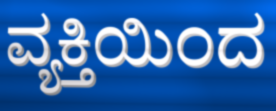
ವ್ಯಕ್ತಿಯಿಂದ